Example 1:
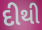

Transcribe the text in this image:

દીથી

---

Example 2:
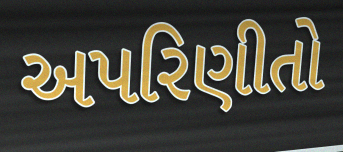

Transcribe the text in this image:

અપરિણીતો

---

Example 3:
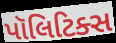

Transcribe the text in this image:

પૉલિટિક્સ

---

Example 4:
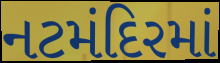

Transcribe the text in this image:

નટમંદિરમાં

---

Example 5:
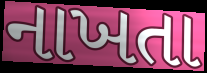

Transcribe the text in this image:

નાખતા